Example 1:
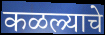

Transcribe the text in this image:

कळल्याचे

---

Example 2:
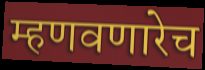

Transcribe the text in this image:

म्हणवणारेच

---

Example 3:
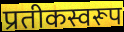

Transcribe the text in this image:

प्रतीकस्वरूप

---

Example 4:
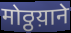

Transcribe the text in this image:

मोठ्ठय़ाने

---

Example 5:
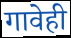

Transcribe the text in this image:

गावेही